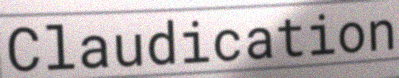
Claudication